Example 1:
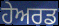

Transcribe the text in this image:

ਹੇਅਰਡ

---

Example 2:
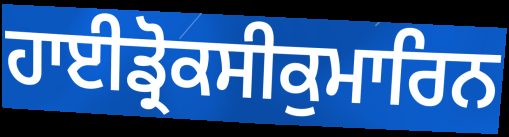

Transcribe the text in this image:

ਹਾਈਡ੍ਰੋਕਸੀਕੁਮਾਰਿਨ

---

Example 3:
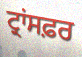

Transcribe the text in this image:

ਟ੍ਰਾਂਸਫ਼ਰ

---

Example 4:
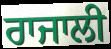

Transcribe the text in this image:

ਰਾਜਾਲੀ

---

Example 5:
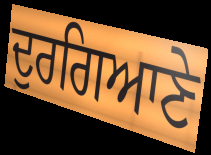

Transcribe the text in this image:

ਦੁਰਗਿਆਣੇ